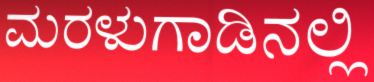
ಮರಳುಗಾಡಿನಲ್ಲಿ